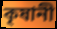
কৃষানী